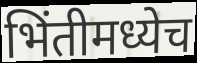
भिंतीमध्येच